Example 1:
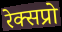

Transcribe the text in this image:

रेक्सप्रो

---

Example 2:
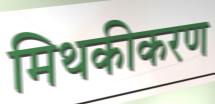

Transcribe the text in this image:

मिथकीकरण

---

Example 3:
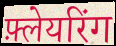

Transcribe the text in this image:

फ़्लेयरिंग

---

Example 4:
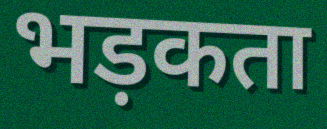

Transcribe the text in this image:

भड़कता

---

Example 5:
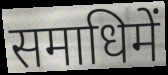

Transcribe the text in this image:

समाधिमें